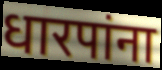
धारपांना